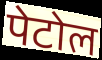
पेटोल